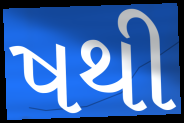
ષથી